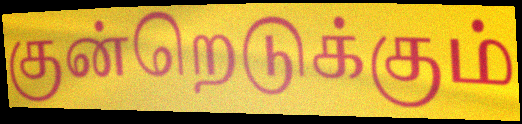
குன்றெடுக்கும்